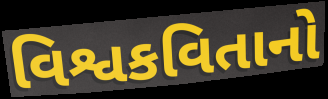
વિશ્વકવિતાનો